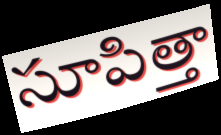
సూపిత్తా